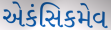
એકંસિકમેવ